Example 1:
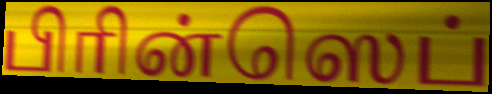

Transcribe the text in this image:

பிரின்ஸெப்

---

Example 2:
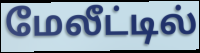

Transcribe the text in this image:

மேலீட்டில்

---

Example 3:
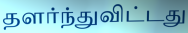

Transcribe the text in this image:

தளர்ந்துவிட்டது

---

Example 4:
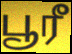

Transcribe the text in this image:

பூரீ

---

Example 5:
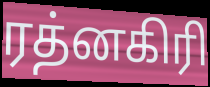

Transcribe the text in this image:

ரத்னகிரி